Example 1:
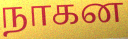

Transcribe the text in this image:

நாகன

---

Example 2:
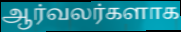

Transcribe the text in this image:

ஆர்வலர்களாக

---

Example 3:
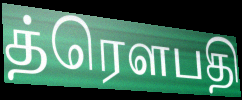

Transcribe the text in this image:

த்ரௌபதி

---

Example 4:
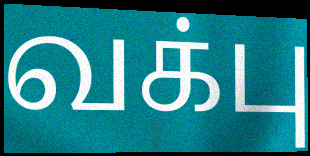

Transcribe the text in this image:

வக்பு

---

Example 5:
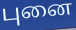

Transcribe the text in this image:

புனை